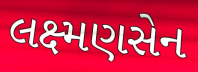
લક્ષ્મણસેન